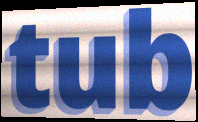
tub